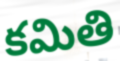
కమితి